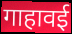
गाहावई